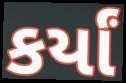
કર્યાં